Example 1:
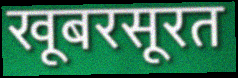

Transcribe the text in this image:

खूबरसूरत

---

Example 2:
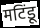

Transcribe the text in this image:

मटिंडू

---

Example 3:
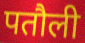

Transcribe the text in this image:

पतौली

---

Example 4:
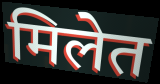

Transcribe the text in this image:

मिलेत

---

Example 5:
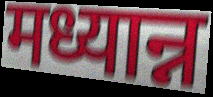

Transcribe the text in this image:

मध्यान्न